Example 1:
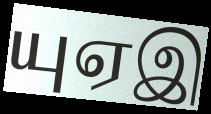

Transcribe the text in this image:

யுஏஇ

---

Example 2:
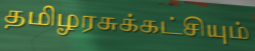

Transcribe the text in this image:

தமிழரசுக்கட்சியும்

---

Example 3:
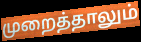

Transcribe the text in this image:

முறைத்தாலும்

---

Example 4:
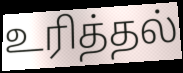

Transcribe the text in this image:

உரித்தல்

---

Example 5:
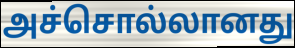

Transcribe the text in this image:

அச்சொல்லானது